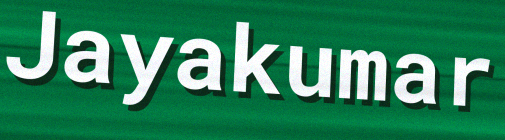
Jayakumar